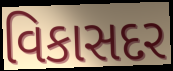
વિકાસદર